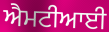
ਐਮਟੀਆਈ